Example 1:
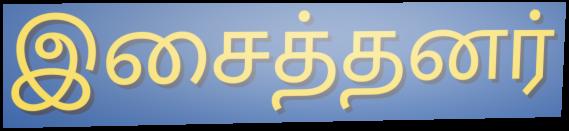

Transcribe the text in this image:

இசைத்தனர்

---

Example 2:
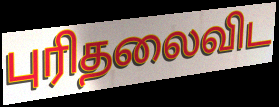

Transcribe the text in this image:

புரிதலைவிட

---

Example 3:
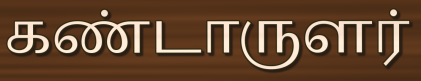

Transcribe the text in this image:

கண்டாருளர்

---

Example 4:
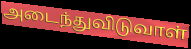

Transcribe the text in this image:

அடைந்துவிடுவாள்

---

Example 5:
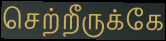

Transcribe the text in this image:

செற்றீருக்கே